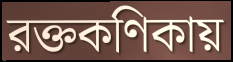
রক্তকণিকায়